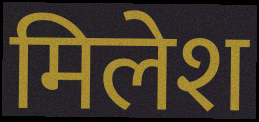
मिलेश